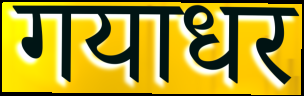
गयाधर